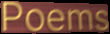
Poems